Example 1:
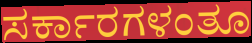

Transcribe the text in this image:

ಸರ್ಕಾರಗಳಂತೂ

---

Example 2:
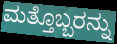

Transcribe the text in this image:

ಮತ್ತೊಬ್ಬರನ್ನು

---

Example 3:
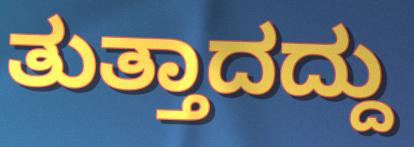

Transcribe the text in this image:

ತುತ್ತಾದದ್ದು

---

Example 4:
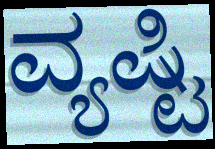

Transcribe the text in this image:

ವ್ಯಷ್ಟಿ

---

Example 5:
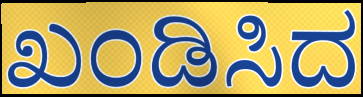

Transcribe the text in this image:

ಖಂಡಿಸಿದ